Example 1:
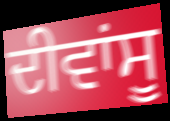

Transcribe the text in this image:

ਦੀਵਾਂਸੂ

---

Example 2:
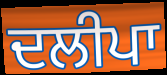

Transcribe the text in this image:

ਦਲੀਪਾ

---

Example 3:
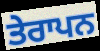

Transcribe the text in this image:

ਤੇਰਾਪਨ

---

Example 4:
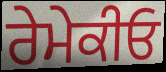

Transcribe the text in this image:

ਰੇਮੇਕੀਓ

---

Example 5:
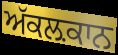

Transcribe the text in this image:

ਅੱਕਲ਼ਕਾਨ